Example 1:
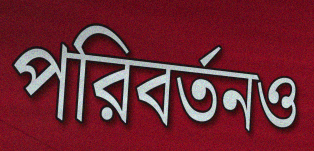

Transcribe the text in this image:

পরিবর্তনও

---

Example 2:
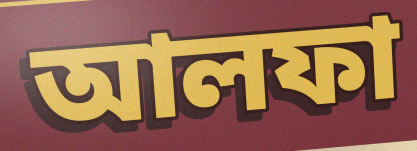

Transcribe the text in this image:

আলফা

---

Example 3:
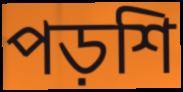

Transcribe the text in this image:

পড়শি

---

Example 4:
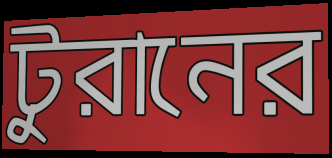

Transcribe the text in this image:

টুরানের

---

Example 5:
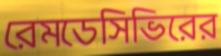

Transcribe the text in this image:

রেমডেসিভিরের